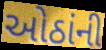
ઓઠાંની